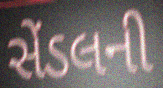
સેંડલની